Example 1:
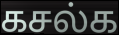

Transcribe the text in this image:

கசல்க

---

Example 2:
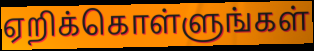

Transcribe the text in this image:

ஏறிக்கொள்ளுங்கள்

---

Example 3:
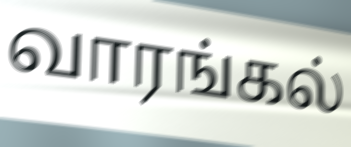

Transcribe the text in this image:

வாரங்கல்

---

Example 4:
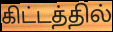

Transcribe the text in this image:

கிட்டத்தில்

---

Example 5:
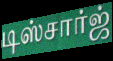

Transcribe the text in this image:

டிஸ்சார்ஜ்